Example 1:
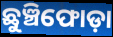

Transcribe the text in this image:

ଛୁଞ୍ଚିଫୋଡ଼ା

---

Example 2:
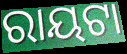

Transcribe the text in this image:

ରାୟଟା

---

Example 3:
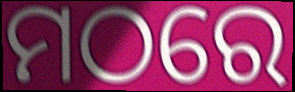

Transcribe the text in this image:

ମଠରେ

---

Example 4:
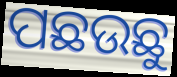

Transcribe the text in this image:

ପଛଉଛୁ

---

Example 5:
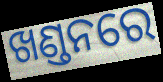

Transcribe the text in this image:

ଖଣ୍ଡନରେ